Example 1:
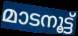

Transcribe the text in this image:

മാടനൂട്ട്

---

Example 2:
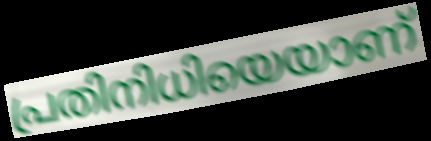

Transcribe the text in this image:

പ്രതിനിധിയെയാണ്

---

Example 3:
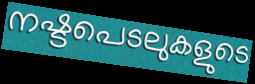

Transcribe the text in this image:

നഷ്ടപെടലുകളുടെ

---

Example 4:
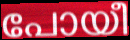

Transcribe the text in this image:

പോയീ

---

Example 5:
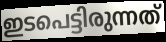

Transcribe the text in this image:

ഇടപെട്ടിരുന്നത്